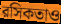
রসিকতাও